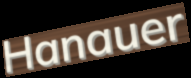
Hanauer